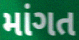
માંગત